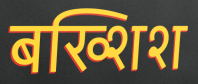
बख्शिश